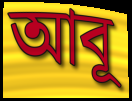
আবূ